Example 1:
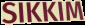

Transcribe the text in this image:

SIKKIM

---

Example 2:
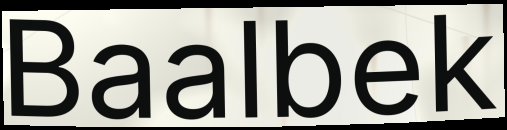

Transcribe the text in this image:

Baalbek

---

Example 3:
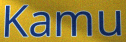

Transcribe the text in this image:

Kamu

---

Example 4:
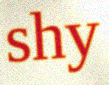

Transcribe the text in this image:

shy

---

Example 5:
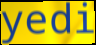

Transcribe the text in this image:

yedi